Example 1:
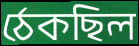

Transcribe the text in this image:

ঠেকছিল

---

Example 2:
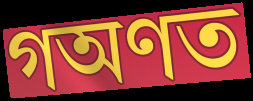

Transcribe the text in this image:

গঅণত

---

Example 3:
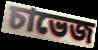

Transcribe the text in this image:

চাভেজ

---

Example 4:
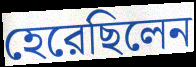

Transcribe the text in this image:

হেরেছিলেন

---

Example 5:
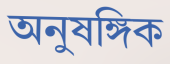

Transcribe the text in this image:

অনুষঙ্গিক